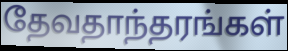
தேவதாந்தரங்கள்